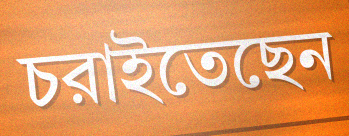
চরাইতেছেন